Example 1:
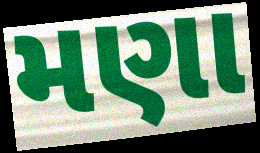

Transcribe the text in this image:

મણા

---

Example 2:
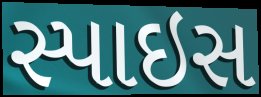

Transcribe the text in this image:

સ્પાઇસ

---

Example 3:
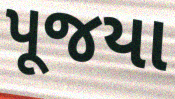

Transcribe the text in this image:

પૂજયા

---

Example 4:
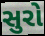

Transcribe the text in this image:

સુરો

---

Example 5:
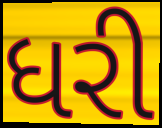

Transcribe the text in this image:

ધરી